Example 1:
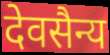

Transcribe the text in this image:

देवसैन्य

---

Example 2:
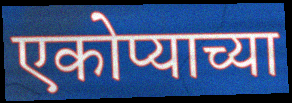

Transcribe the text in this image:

एकोप्याच्या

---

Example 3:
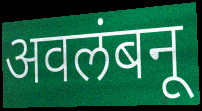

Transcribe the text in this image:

अवलंबनू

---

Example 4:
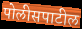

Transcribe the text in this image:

पोलीसपाटील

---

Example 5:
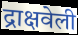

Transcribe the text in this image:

द्राक्षवेली